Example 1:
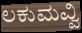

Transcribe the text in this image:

ಲಕುಮವ್ವಿ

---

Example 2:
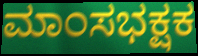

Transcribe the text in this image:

ಮಾಂಸಭಕ್ಷಕ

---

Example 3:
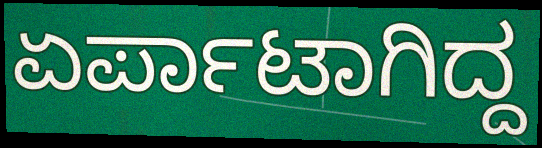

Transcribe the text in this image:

ಏರ್ಪಾಟಾಗಿದ್ದ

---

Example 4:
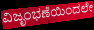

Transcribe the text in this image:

ವಿಜೃಂಭಣೆಯಿಂದಲೇ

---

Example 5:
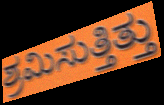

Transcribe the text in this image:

ಶ್ರಮಿಸುತ್ತಿತ್ತು